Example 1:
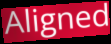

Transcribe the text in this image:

Aligned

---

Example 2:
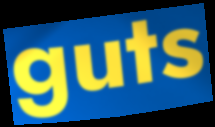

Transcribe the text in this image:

guts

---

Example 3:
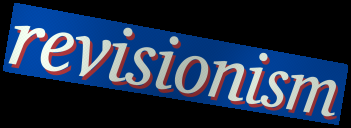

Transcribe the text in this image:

revisionism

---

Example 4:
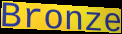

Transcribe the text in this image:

Bronze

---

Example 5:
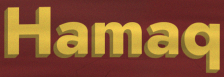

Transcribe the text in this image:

Hamaq